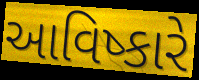
આવિષ્કારે